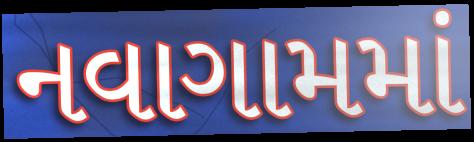
નવાગામમાં